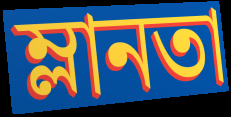
ম্লানতা